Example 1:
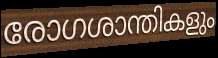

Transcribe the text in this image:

രോഗശാന്തികളും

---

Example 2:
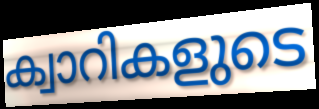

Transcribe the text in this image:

ക്വാറികളുടെ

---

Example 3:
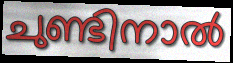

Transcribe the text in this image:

ചുണ്ടിനാൽ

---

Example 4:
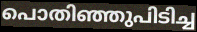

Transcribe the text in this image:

പൊതിഞ്ഞുപിടിച്ച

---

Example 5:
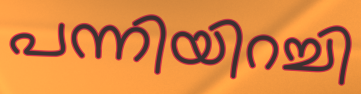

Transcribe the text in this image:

പന്നിയിറച്ചി